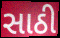
સાઠી